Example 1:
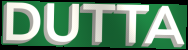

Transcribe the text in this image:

DUTTA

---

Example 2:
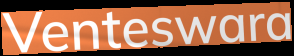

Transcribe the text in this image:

Venteswara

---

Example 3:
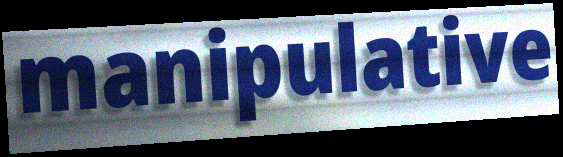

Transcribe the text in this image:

manipulative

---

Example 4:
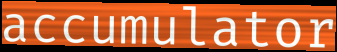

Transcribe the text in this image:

accumulator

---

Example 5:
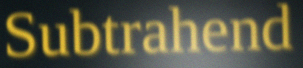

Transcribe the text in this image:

Subtrahend